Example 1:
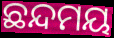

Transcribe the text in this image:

ଛନ୍ଦମୟ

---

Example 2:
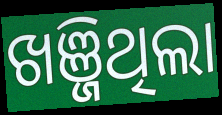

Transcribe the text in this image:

ଖଞ୍ଜିଥିଲା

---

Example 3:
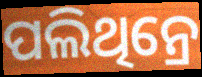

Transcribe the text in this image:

ପଲିଥିନ୍ରେ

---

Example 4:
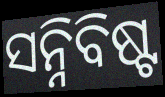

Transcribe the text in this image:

ସନ୍ନିବିଷ୍ଟ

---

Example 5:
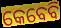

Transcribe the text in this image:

କେବେବି